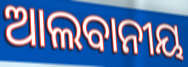
ଆଲବାନୀୟ